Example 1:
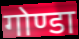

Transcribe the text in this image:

गोण्डा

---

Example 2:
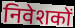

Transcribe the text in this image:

निवेशकों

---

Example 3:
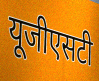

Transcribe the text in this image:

यूजीएसटी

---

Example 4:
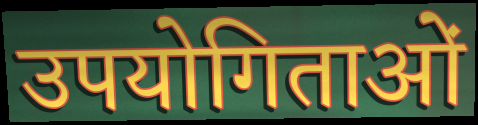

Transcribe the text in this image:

उपयोगिताओं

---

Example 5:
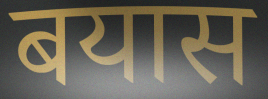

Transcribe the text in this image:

बयास